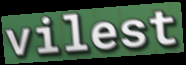
vilest